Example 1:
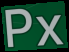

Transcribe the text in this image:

Px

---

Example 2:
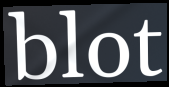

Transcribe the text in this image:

blot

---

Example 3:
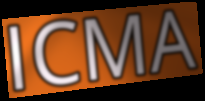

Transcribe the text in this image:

ICMA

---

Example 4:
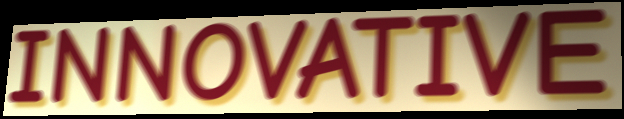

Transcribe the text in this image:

INNOVATIVE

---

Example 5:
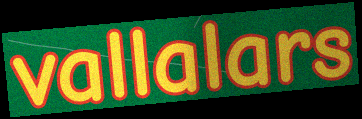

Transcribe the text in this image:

vallalars